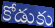
కోడుకు